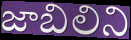
జాబిలిని